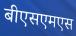
बीएसएमएस